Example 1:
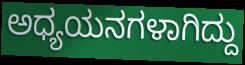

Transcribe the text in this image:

ಅಧ್ಯಯನಗಳಾಗಿದ್ದು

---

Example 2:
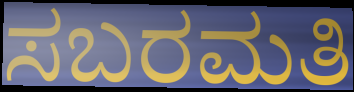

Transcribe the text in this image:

ಸಬರಮತಿ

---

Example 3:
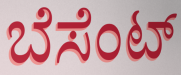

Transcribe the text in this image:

ಬೆಸೆಂಟ್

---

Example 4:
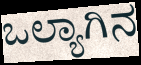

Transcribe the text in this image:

ಒಲ್ಯಾಗಿನ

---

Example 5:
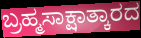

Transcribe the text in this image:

ಬ್ರಹ್ಮಸಾಕ್ಷಾತ್ಕಾರದ